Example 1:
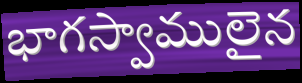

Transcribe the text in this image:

భాగస్వాములైన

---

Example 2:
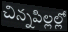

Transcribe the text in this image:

చిన్నపిల్లల్లో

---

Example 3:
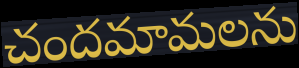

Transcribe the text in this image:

చందమామలను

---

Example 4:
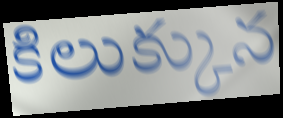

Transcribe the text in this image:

కిలుక్కున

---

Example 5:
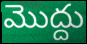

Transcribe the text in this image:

మొద్దు